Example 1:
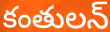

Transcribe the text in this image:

కంతులన్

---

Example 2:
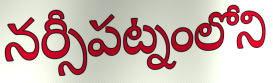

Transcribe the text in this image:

నర్సీపట్నంలోని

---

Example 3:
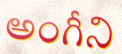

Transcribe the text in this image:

అంగీని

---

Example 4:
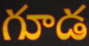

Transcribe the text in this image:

గూడ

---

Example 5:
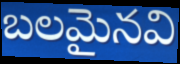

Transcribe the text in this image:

బలమైనవి